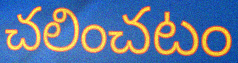
చలించటం